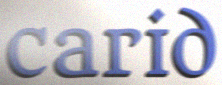
carid